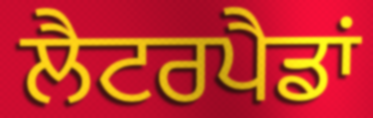
ਲੈਟਰਪੈਡਾਂ